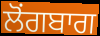
ਲੋਂਗਬਾਗ